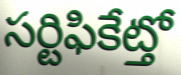
సర్టిఫికేట్తో